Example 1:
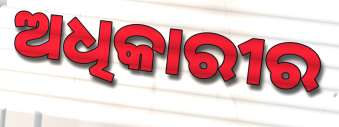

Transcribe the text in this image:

ଅଧିକାରୀର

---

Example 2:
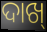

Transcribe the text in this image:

ଦାଖ୍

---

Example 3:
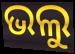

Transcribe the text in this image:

ଭଲୁ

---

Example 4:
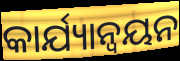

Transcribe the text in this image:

କାର୍ଯ୍ୟାନ୍ବୟନ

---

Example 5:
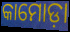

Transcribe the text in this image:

କାମୋଡ଼ା